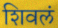
शिवलं